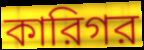
কারিগর